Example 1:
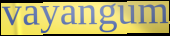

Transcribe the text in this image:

vayangum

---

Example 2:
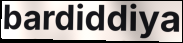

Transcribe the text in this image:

bardiddiya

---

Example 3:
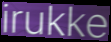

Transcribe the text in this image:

irukke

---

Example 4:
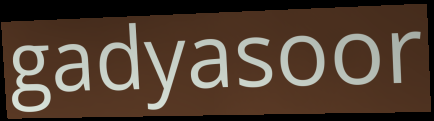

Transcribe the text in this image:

gadyasoor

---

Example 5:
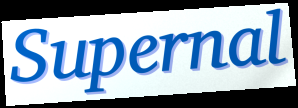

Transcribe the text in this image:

Supernal